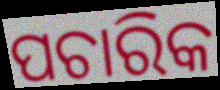
ପଚାରିକ